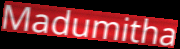
Madumitha